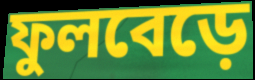
ফুলবেড়ে